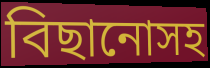
বিছানোসহ